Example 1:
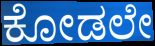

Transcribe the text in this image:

ಕೋಡಲೇ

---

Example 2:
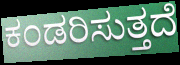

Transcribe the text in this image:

ಕಂಡರಿಸುತ್ತದೆ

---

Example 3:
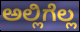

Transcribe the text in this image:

ಅಲ್ಲಿಗೆಲ್ಲ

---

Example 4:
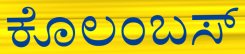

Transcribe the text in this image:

ಕೊಲಂಬಸ್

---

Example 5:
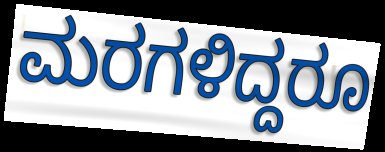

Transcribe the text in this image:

ಮರಗಳಿದ್ದರೂ